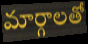
మార్గాలతో